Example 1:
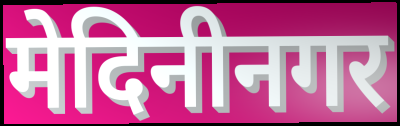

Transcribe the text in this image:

मेदिनीनगर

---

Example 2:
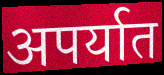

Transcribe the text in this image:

अपर्यात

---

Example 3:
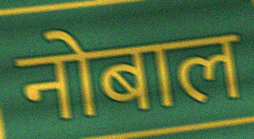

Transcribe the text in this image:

नोबाल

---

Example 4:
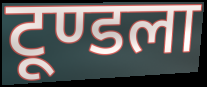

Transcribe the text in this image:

टूण्डला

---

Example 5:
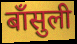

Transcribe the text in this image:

बाँसुली